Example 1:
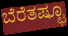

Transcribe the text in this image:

ಬೆರೆತಷ್ಟೂ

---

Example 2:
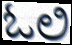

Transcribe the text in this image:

ಓಲಿ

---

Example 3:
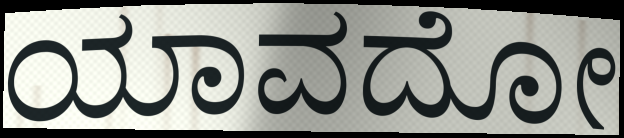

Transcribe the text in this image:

ಯಾವದೋ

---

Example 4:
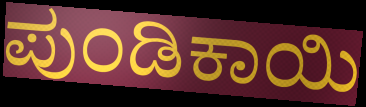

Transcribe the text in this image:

ಪುಂಡಿಕಾಯಿ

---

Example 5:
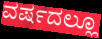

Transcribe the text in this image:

ವರ್ಷದಲ್ಲೂ